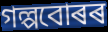
গল্পবোৰৰ